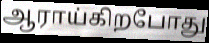
ஆராய்கிறபோது